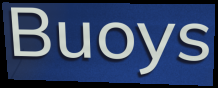
Buoys